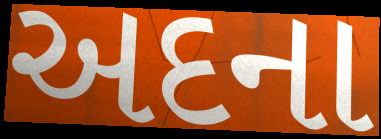
અદના